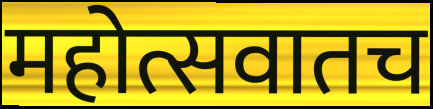
महोत्सवातच